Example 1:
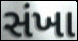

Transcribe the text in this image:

સંખા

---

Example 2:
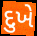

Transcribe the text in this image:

દુખે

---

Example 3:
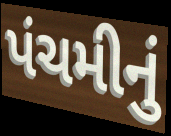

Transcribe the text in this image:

પંચમીનું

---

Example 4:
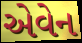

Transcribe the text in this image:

એવેન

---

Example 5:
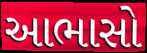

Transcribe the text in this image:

આભાસો